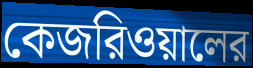
কেজরিওয়ালের